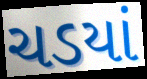
ચડયાં